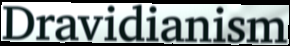
Dravidianism